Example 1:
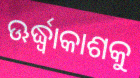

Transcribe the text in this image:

ଊର୍ଦ୍ଧ୍ୱାକାଶକୁ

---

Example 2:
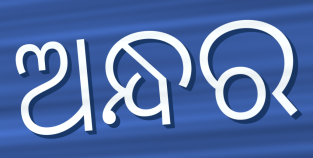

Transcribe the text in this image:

ଅନ୍ଧର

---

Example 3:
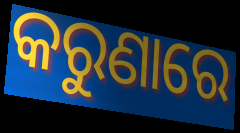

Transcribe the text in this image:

କରୁଣାରେ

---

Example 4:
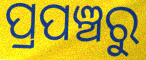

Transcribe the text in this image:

ପ୍ରପଞ୍ଚରୁ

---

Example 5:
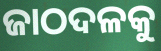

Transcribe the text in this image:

ଜାଠଦଳକୁ